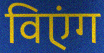
विएंग